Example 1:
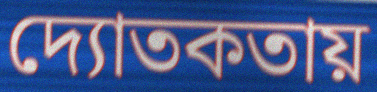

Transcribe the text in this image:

দ্যোতকতায়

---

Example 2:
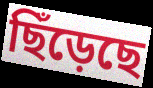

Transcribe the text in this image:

ছিঁড়েছে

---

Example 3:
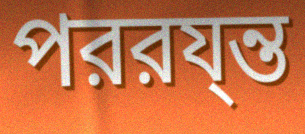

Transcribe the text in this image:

পররয্ন্ত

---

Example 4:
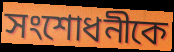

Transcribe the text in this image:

সংশোধনীকে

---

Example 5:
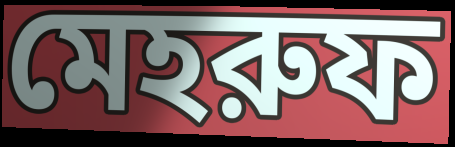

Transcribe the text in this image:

মেহরুফ